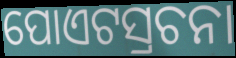
ପୋଏଟସ୍ରଚନା